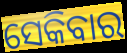
ସେକିବାର